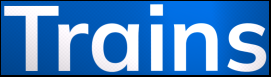
Trains